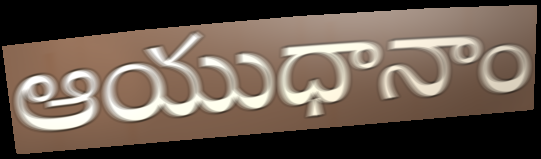
ఆయుధానాం